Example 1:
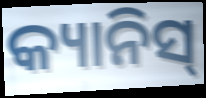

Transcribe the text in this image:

କ୍ୟାନିସ୍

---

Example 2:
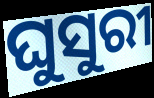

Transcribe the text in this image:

ଘୁସୁରୀ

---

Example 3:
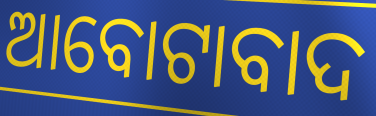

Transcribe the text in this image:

ଆବୋଟାବାଦ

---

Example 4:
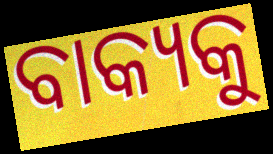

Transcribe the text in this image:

ବାକ୍ୟକୁ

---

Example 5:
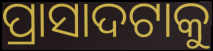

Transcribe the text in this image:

ପ୍ରାସାଦଟାକୁ